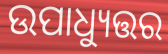
ଉପାଧ୍ୟୁତ୍ତର